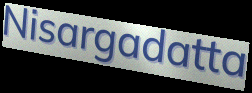
Nisargadatta